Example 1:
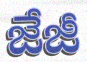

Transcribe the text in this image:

జేజీ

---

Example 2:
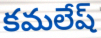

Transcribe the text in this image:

కమలేష్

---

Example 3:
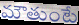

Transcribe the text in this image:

మౌతుంటే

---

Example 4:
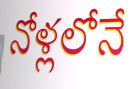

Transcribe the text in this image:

నోళ్లలోనే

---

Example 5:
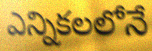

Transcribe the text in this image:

ఎన్నికలలోనే